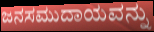
ಜನಸಮುದಾಯವನ್ನು